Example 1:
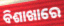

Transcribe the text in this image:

ବିଶାଖାରେ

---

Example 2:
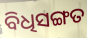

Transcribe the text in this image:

ବିଧିସଙ୍ଗତ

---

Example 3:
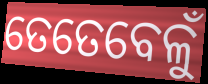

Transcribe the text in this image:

ତେତେବେଳୁଁ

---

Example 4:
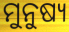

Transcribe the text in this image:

ମୁନୁଷ୍ୟ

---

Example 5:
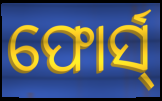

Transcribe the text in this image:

ଫୋର୍ସ୍